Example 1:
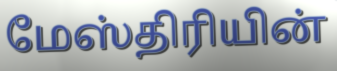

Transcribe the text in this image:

மேஸ்திரியின்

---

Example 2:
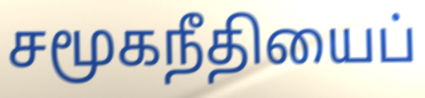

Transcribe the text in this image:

சமூகநீதியைப்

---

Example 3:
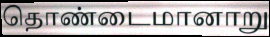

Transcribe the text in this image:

தொண்டைமானாறு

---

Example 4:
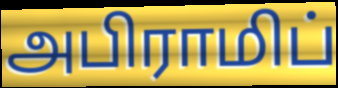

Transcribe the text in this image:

அபிராமிப்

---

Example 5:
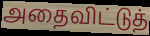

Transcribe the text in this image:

அதைவிட்டுத்